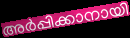
അർപ്പിക്കാനായി